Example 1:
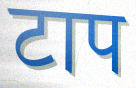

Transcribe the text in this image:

टाप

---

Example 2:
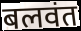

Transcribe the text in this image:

बलवंत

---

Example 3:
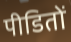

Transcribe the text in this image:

पीडितों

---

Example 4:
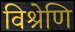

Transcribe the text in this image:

विश्रेणि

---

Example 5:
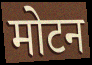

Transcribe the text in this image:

मोटन